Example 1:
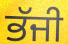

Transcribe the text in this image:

ਭੱਜੀ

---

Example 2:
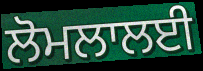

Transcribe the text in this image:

ਲੋਮਲਾਲਈ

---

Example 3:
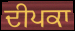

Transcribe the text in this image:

ਦੀਪਕਾ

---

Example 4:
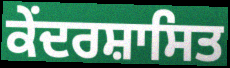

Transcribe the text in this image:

ਕੇਂਦਰਸ਼ਾਸਿਤ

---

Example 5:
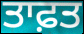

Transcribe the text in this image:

ਤਾਫ਼ਤ